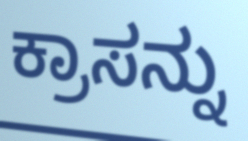
ಕ್ರಾಸನ್ನು